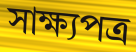
সাক্ষ্যপত্র